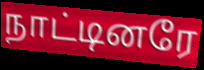
நாட்டினரே